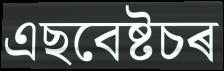
এছবেষ্টচৰ